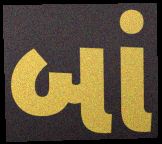
બાં